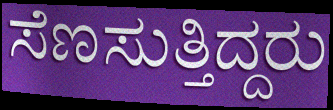
ಸೆಣಸುತ್ತಿದ್ದರು